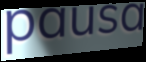
pausa